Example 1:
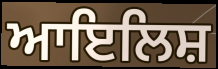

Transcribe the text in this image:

ਆਇਲਿਸ਼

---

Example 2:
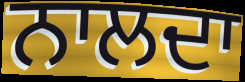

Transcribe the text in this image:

ਨਾਲਦਾ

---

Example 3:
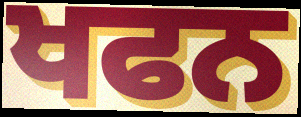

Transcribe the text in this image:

ਖਫਨ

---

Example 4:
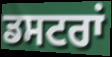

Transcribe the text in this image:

ਡਸਟਰਾਂ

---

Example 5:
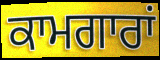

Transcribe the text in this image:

ਕਾਮਗਾਰਾਂ